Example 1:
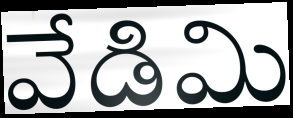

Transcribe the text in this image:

వేడిమి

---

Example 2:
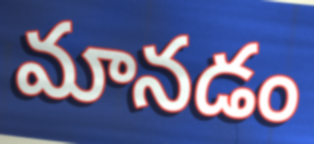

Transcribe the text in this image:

మానడం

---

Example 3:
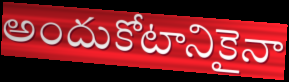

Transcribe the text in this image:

అందుకోటానికైనా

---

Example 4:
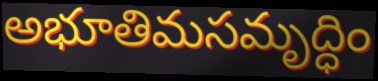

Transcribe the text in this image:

అభూతిమసమృద్ధిం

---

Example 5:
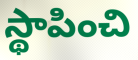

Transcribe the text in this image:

స్థాపించి